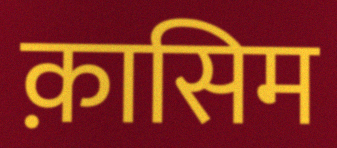
क़ासिम